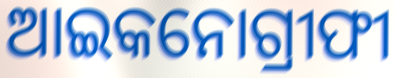
ଆଇକନୋଗ୍ରୀଫୀ